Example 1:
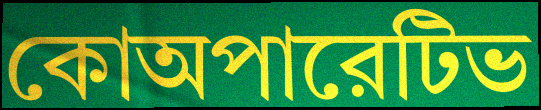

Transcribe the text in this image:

কোঅপারেটিভ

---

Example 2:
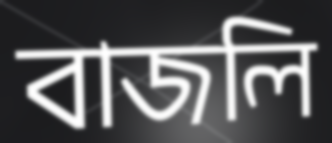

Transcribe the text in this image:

বাজলি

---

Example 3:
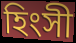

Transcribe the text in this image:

হিংসী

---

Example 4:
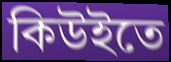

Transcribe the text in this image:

কিউইতে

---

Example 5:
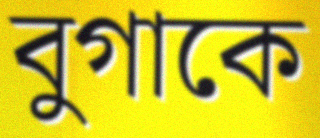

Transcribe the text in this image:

বুগাকে